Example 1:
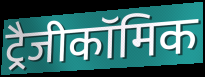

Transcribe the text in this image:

ट्रैजीकॉमिक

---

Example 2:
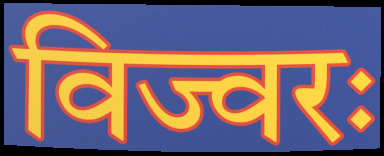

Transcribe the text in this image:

विज्वरः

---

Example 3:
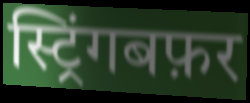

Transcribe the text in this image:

स्ट्रिंगबफ़र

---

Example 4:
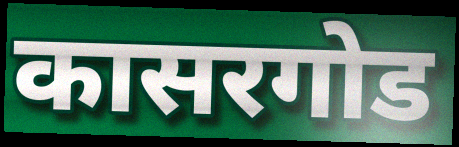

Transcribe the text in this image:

कासरगोड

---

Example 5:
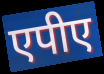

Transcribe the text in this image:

एपीए